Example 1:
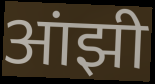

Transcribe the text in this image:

आंझी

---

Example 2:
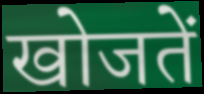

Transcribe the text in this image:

खोजतें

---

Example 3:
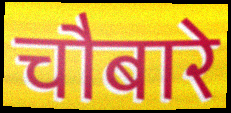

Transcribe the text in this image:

चौबारे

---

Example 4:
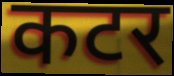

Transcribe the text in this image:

कटर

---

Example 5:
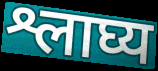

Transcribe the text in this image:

श्लाघ्य